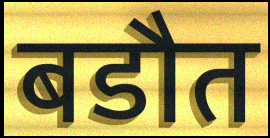
बडौत